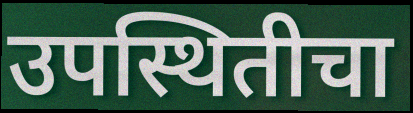
उपस्थितीचा